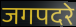
जगपदरे